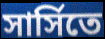
সার্সিতে